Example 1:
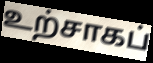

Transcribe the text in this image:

உற்சாகப்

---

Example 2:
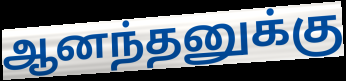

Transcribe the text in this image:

ஆனந்தனுக்கு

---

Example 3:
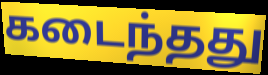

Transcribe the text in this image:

கடைந்தது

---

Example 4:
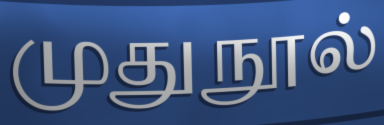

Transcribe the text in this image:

முதுநூல்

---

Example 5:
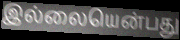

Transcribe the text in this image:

இல்லையென்பது